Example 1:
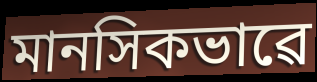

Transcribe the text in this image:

মানসিকভাৱে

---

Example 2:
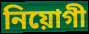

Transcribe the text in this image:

নিয়োগী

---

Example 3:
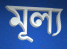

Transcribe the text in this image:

মূল্য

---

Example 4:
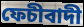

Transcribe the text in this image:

ফেচীবাদী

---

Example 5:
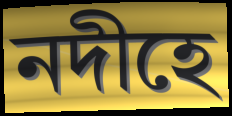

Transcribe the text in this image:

নদীহে